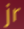
jr